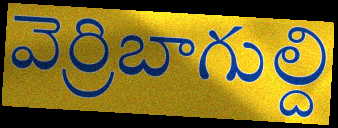
వెర్రిబాగుల్ది